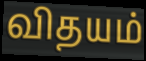
விதயம்